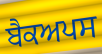
ਬੈਕਅਪਸ